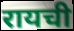
रायची